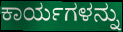
ಕಾರ್ಯಗಳನ್ನು